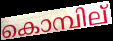
കൊമ്പില്